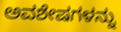
ಅವಶೇಷಗಳನ್ನು